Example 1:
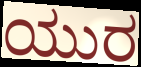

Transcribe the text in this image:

ಯುರ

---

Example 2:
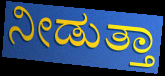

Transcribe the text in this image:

ನೀಡುತ್ತಾ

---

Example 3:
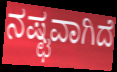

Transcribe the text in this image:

ನಷ್ಟವಾಗಿದೆ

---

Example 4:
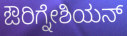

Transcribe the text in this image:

ಔರಿಗ್ನೇಶಿಯನ್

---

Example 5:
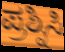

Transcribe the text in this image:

ಪ್ರಶ್ನಿಸಿ